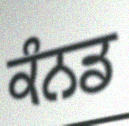
ਕੰਨਡ